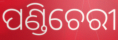
ପଣ୍ଡିଚେରୀ